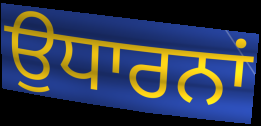
ਉਧਾਰਨਾਂ